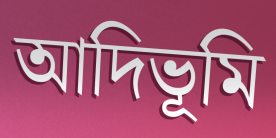
আদিভূমি